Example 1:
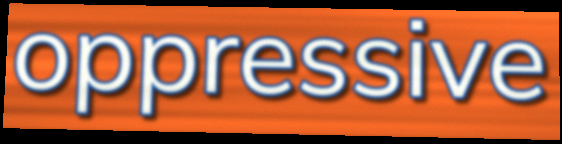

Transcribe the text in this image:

oppressive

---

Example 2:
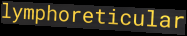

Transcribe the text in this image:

lymphoreticular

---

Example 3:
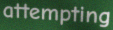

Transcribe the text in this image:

attempting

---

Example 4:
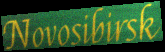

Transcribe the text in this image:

Novosibirsk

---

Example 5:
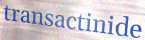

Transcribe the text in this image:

transactinide